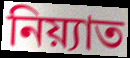
নিয়্যাত